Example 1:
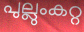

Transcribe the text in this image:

പുല്ലുംകറ്റ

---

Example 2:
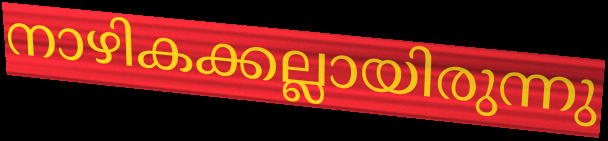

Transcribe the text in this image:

നാഴികക്കല്ലായിരുന്നു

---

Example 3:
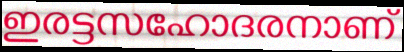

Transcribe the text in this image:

ഇരട്ടസഹോദരനാണ്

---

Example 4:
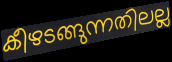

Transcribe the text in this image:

കീഴടങ്ങുന്നതിലല്ല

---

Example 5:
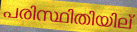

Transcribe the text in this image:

പരിസ്ഥിതിയില്